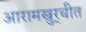
आरामखुर्चीत